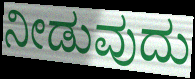
ನೀಡುವುದು